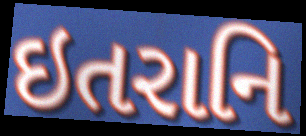
ઇતરાનિ